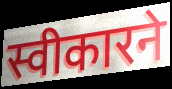
स्वीकारने